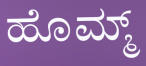
ಹೊಮ್ಮ್